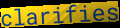
clarifies